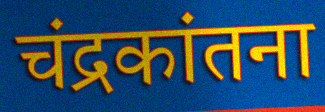
चंद्रकांतना